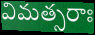
విమత్సరాః